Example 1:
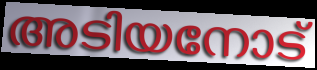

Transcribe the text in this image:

അടിയനോട്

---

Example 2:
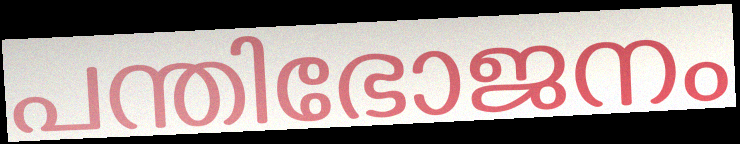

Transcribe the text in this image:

പന്തിഭോജനം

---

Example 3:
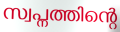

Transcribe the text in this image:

സ്വപ്നത്തിന്റെ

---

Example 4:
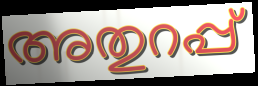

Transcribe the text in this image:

അതുറപ്പ്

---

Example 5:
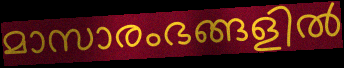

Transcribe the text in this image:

മാസാരംഭങ്ങളിൽ